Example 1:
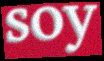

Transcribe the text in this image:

soy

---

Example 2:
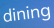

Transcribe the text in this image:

dining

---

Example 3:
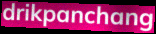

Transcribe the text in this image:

drikpanchang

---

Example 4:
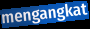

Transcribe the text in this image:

mengangkat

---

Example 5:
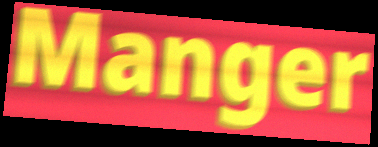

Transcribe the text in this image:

Manger